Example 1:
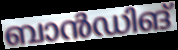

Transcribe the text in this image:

ബാൻഡിങ്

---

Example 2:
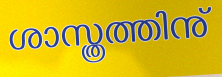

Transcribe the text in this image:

ശാസ്ത്രത്തിനു്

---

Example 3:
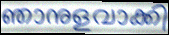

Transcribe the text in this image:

ഞാനുളവാക്കി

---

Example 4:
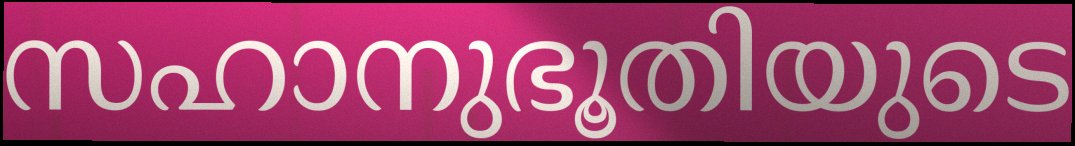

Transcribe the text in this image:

സഹാനുഭൂതിയുടെ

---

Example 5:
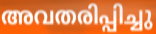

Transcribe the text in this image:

അവതരിപ്പിച്ചു